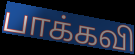
பாக்கவி